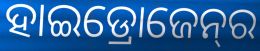
ହାଇଡ୍ରୋଜେନ୍‌ର